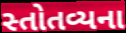
સ્તોતવ્યના